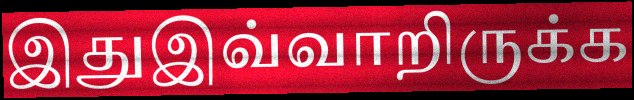
இதுஇவ்வாறிருக்க